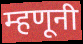
म्हणूनी